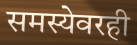
समस्येवरही